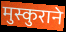
मुस्‍कुराने